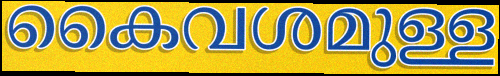
കൈവശമുള്ള